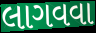
લાગવવા